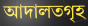
আদালতগৃহ